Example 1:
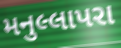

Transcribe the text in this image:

મનુલ્લાપરા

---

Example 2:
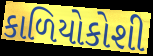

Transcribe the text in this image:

કાળિયોકોશી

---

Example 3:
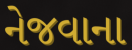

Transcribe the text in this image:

નેજવાના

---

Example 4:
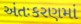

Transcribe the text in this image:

અંતઃકરણમાં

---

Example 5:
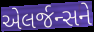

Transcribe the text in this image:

એલર્જન્સને